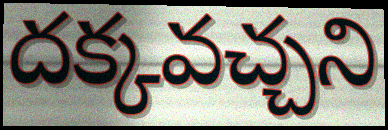
దక్కవచ్చని